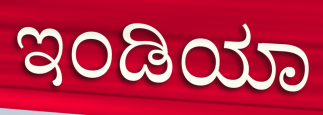
ಇಂಡಿಯಾ